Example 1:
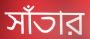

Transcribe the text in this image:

সাঁতার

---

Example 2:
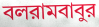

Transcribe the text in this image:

বলরামবাবুর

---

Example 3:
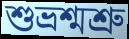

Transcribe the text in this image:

শুভ্রশ্মশ্রু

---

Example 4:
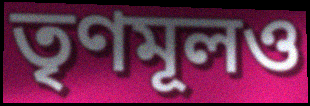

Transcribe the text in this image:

তৃণমূলও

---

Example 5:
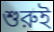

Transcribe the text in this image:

শুরুই